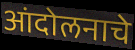
आंदोलनाचे